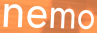
nemo